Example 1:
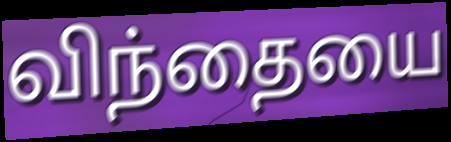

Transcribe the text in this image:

விந்தையை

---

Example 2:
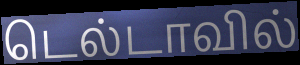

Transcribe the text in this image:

டெல்டாவில்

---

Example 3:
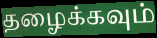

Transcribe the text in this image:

தழைக்கவும்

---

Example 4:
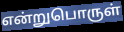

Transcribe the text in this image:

என்றுபொருள்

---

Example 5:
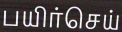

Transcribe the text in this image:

பயிர்செய்